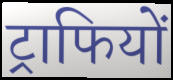
ट्राफियों